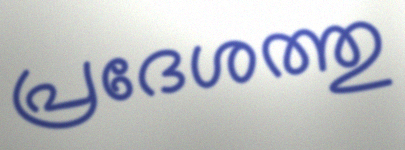
പ്രദേശത്തു